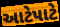
આટેપાટે